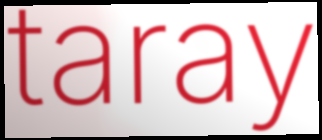
taray